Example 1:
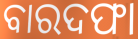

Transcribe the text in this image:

ବାରଦଫା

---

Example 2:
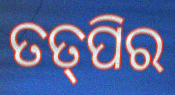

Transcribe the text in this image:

ତତ୍‌ପିର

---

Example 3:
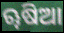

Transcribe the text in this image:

ୠଷିଆ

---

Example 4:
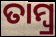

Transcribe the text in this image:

ତାମ୍ବ୍ର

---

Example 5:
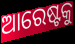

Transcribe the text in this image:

ଆରେଷ୍ଟକୁ